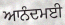
ਆਨੰਦਮਈ